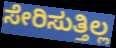
ಸೇರಿಸುತ್ತಿಲ್ಲ